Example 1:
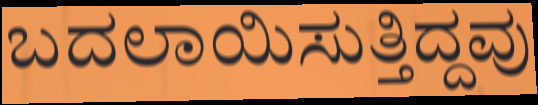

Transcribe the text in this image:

ಬದಲಾಯಿಸುತ್ತಿದ್ದವು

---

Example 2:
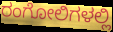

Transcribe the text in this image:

ರಂಗೋಲಿಗಳಲ್ಲಿ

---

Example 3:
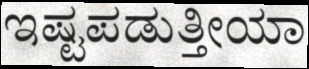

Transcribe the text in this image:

ಇಷ್ಟಪಡುತ್ತೀಯಾ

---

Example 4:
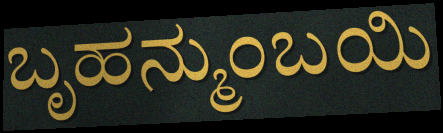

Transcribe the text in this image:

ಬೃಹನ್ಮುಂಬಯಿ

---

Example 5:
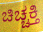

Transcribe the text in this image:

ಚಿಚ್ಚಕ್ತಿ